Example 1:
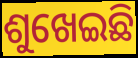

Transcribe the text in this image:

ଶୁଖେଇଛି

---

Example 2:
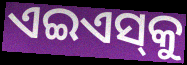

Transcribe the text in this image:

ଏଇଏସ୍‌କୁ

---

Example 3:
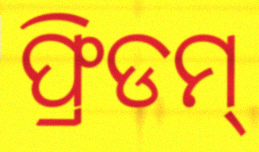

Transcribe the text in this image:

ଫ୍ରିଡମ୍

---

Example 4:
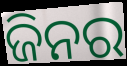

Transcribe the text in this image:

ଜିନର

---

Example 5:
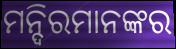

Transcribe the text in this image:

ମନ୍ଦିରମାନଙ୍କର